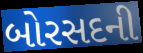
બોરસદની